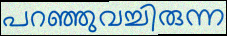
പറഞ്ഞുവച്ചിരുന്ന